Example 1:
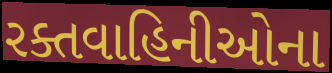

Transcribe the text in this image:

રક્તવાહિનીઓના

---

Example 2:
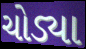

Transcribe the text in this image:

ચોડ્યા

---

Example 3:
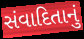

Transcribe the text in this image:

સંવાદિતાનું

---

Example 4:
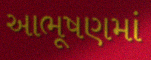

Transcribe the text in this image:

આભૂષણમાં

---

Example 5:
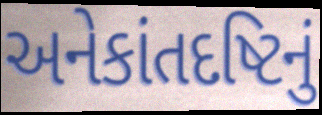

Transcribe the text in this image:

અનેકાંતદષ્ટિનું